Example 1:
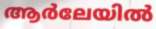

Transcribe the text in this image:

ആർലേയിൽ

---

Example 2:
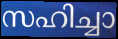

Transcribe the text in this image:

സഹിച്ചാ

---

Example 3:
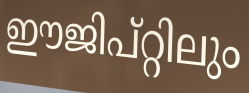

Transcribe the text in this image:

ഈജിപ്റ്റിലും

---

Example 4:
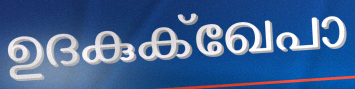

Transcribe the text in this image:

ഉദകുക്ഖേപാ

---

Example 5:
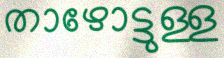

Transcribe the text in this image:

താഴോട്ടുള്ള